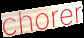
chorer